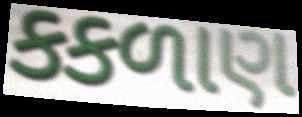
કકળાણ